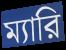
ম্যারি